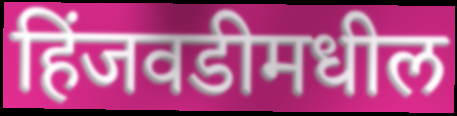
हिंजवडीमधील